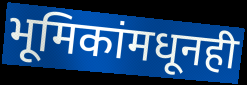
भूमिकांमधूनही